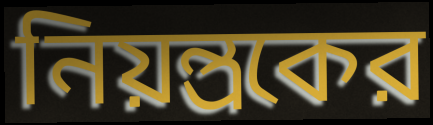
নিয়ন্ত্রকের